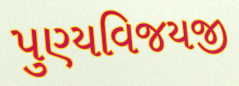
પુણ્યવિજયજી